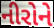
નીરોને